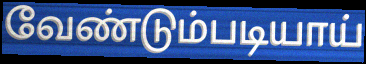
வேண்டும்படியாய்